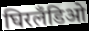
घिरलँडिओ